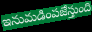
ఇనుమడింపజేస్తుంది